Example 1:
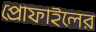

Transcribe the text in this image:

প্রোফাইলের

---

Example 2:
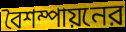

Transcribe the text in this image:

বৈশম্পায়নের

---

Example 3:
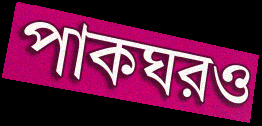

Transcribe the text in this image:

পাকঘরও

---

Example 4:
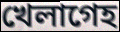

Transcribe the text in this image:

খেলাগেহ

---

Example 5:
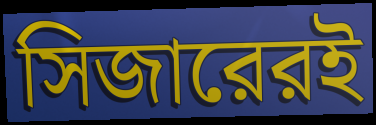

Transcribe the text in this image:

সিজারেরই